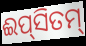
ଈପ୍‌ସିତମ୍